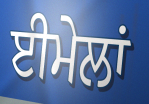
ਈਮੇਲਾਂ